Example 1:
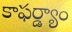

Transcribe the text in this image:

కాఫర్డ్యాం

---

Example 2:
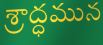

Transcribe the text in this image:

శ్రాద్ధమున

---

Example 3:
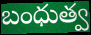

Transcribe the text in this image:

బంధుత్వ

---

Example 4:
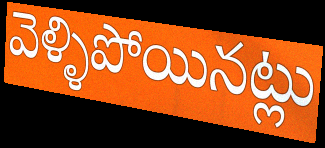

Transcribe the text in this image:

వెళ్ళిపోయినట్లు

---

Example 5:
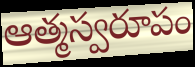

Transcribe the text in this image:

ఆత్మస్వరూపం